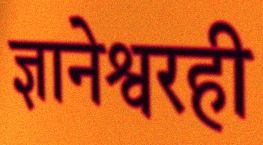
ज्ञानेश्वरही